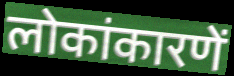
लोकांकारणें